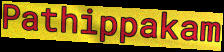
Pathippakam